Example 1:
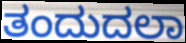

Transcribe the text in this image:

ತಂದುದಲಾ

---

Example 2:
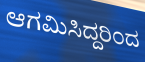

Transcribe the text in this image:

ಆಗಮಿಸಿದ್ದರಿಂದ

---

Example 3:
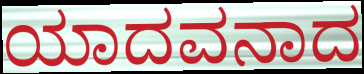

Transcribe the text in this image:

ಯಾದವನಾದ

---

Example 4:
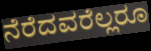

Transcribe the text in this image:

ನೆರೆದವರೆಲ್ಲರೂ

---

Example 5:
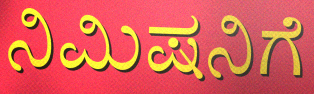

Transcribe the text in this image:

ನಿಮಿಷನಿಗೆ